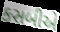
કસબીએ